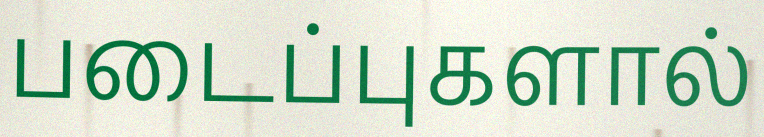
படைப்புகளால்